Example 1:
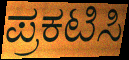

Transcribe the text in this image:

ಪ್ರಕಟಿಸಿ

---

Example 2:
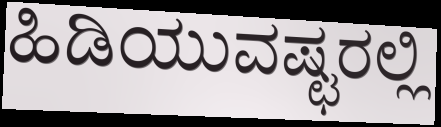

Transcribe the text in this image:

ಹಿಡಿಯುವಷ್ಟರಲ್ಲಿ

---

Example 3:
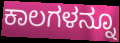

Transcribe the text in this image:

ಕಾಲಗಳನ್ನೂ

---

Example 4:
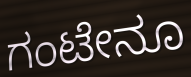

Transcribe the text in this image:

ಗಂಟೇನೂ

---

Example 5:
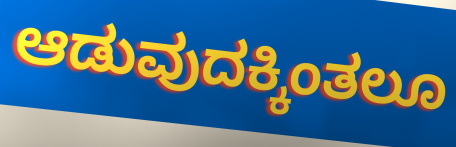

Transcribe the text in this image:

ಆಡುವುದಕ್ಕಿಂತಲೂ